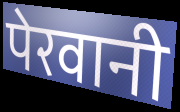
पेरवानी